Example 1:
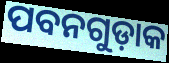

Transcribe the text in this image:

ପବନଗୁଡ଼ାକ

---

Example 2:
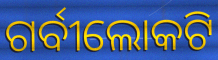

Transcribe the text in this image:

ଗର୍ବୀଲୋକଟି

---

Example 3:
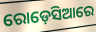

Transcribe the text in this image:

ରୋଡ଼େସିଆରେ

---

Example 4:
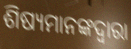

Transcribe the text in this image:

ଶିଷ୍ୟମାନଙ୍କଦ୍ୱାରା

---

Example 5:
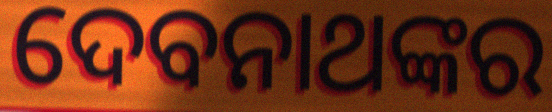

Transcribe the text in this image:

ଦେବନାଥଙ୍କର